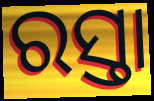
ରସ୍ତା